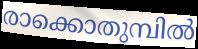
രാക്കൊതുമ്പിൽ